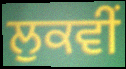
ਲੁਕਵੀਂ